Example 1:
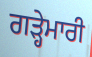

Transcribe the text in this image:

ਗੜ੍ਹੇਮਾਰੀ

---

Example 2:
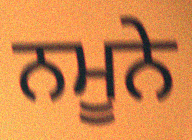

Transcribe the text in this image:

ਨਮੂਨੇ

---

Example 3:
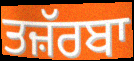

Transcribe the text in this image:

ਤਜ਼ੱਰਬਾ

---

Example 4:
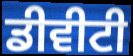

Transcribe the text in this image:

ਡੀਵੀਟੀ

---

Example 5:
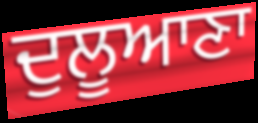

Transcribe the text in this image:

ਦੁਲੂਆਣਾ